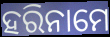
ହରିନାମେ